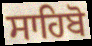
ਸਾਹਿਬੋ